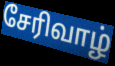
சேரிவாழ்